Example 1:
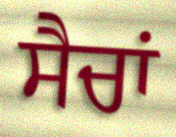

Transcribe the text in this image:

ਸੈਚਾਂ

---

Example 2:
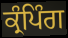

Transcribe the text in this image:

ਕ੍ਰੰਪਿੰਗ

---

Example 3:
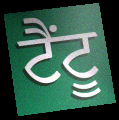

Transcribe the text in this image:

ਟੈਂਟੂ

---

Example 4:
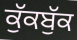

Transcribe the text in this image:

ਕੁੱਕਬੁੱਕ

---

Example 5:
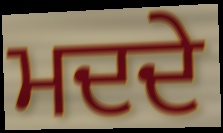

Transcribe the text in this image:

ਮਦਦੇ